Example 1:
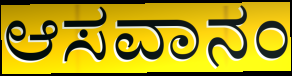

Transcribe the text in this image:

ಆಸವಾನಂ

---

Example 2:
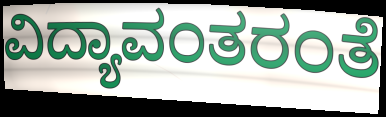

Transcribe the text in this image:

ವಿದ್ಯಾವಂತರಂತೆ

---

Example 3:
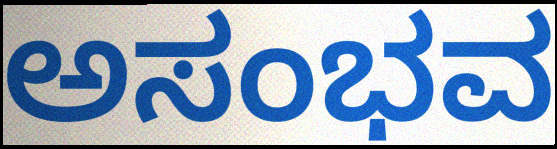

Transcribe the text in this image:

ಅಸಂಭವ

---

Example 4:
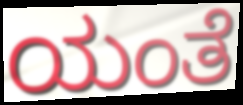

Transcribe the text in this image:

ಯಂತೆ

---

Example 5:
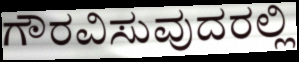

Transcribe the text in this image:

ಗೌರವಿಸುವುದರಲ್ಲಿ